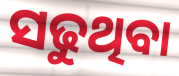
ସଢୁଥିବା